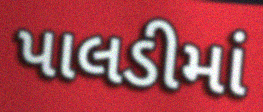
પાલડીમાં